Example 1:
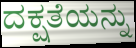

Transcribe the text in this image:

ದಕ್ಷತೆಯನ್ನು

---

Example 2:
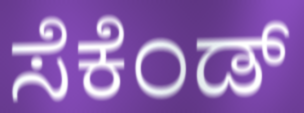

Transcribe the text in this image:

ಸೆಕೆಂಡ್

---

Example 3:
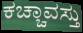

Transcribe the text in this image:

ಕಚ್ಚಾವಸ್ತು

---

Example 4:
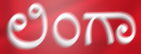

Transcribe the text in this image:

ಲಿಂಗಾ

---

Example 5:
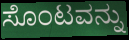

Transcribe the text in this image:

ಸೊಂಟವನ್ನು